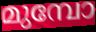
മുമ്പോ